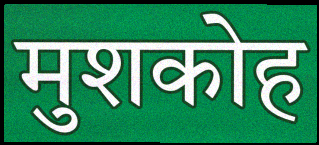
मुशकोह